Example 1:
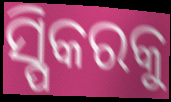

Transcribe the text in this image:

ସ୍ପିକରକୁ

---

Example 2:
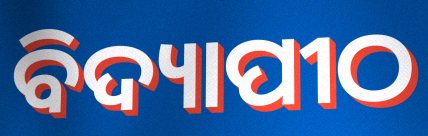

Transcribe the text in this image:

ବିଦ୍ୟାପୀଠ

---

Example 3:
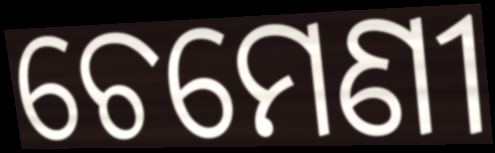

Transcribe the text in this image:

ଚେମେଣୀ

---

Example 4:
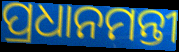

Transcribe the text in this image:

ପ୍ରଧାନମନ୍ତୀ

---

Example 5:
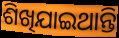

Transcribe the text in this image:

ଶିଖିଯାଇଥାନ୍ତି